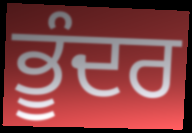
ਭੂੰਦਰ